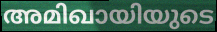
അമിഖായിയുടെ